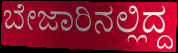
ಬೇಜಾರಿನಲ್ಲಿದ್ದ